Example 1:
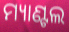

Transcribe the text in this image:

ମ୍ୟାଣ୍ଟଲ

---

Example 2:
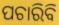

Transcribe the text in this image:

ପଚାରିବି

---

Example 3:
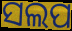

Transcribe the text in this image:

ସଲପ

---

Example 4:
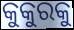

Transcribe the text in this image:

କୁକୁରକୁ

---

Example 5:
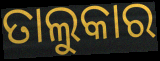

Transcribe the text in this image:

ତାଲୁକାର